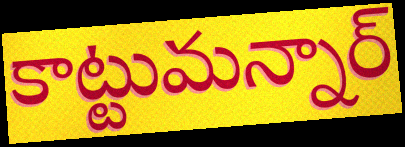
కాట్టుమన్నార్